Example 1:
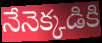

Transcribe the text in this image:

నేనెక్కడికి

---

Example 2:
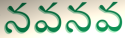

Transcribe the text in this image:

నవనవ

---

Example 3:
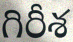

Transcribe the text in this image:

గిరీశ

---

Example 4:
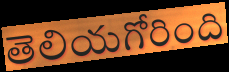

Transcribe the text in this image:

తెలియగోరింది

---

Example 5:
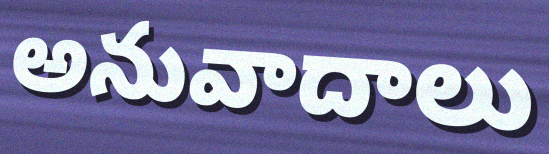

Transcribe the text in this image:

అనువాదాలు